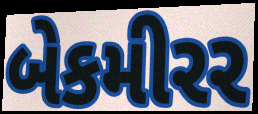
બેકમીરર